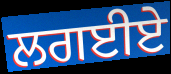
ਲਗਈਏ